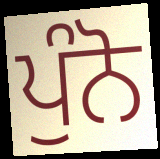
ਪੁੰਨੋ